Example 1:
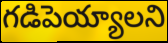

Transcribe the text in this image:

గడిపెయ్యాలని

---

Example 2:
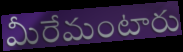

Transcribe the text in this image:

మీరేమంటారు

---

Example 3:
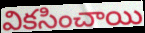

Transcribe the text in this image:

వికసించాయి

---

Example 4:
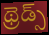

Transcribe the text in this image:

థ్రెడ్స్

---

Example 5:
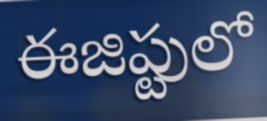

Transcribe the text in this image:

ఈజిప్టులో